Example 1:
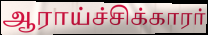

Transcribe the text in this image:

ஆராய்ச்சிக்காரர்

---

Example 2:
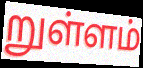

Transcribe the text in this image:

றுள்ளம்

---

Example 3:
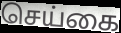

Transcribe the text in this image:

செய்கை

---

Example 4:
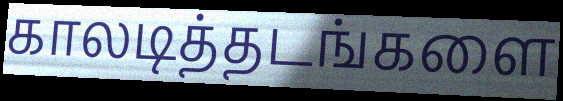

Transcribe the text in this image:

காலடித்தடங்களை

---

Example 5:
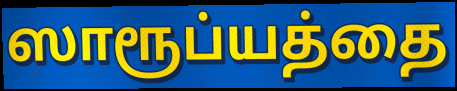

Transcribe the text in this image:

ஸாரூப்யத்தை